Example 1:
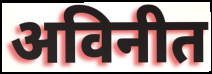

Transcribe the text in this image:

अविनीत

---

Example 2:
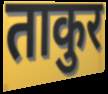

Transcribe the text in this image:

ताकुर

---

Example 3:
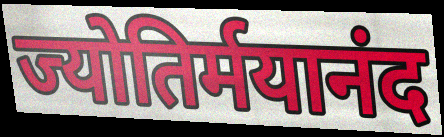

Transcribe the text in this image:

ज्योतिर्मयानंद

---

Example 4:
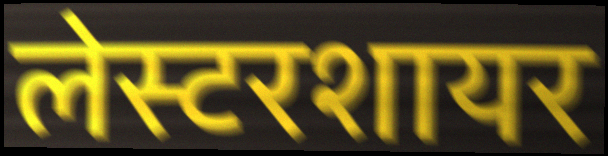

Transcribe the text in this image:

लेस्टरशायर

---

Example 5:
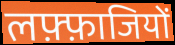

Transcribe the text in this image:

लफ़्फ़ाजियों